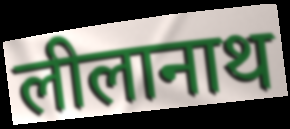
लीलानाथ